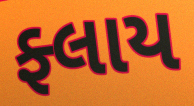
ફ્લાય